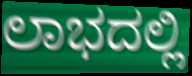
ಲಾಭದಲ್ಲಿ